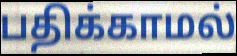
பதிக்காமல்